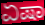
ಏಷಾ